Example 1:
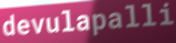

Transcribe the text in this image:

devulapalli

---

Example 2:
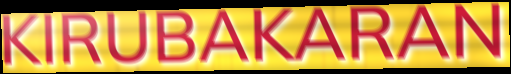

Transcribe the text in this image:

KIRUBAKARAN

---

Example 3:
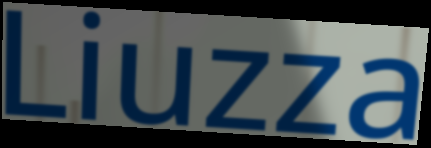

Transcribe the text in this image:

Liuzza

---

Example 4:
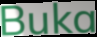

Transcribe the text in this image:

Buka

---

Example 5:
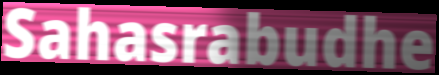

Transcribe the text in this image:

Sahasrabudhe